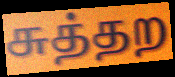
சுத்தற